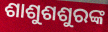
ଶାଶୁଶଶୁରଙ୍କ